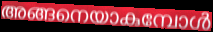
അങ്ങനെയാകുമ്പോൾ